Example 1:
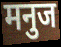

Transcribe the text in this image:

मनुज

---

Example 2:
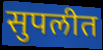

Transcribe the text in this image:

सुपलीत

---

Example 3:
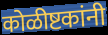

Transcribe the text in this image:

कोळीष्टकांनी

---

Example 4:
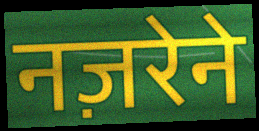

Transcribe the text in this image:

नज़रेने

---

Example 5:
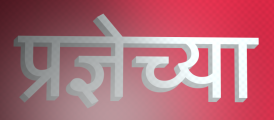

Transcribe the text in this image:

प्रज्ञेच्या